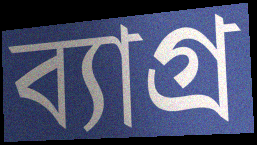
ব্যাগ্র